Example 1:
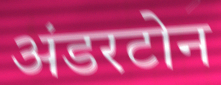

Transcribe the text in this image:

अंडरटोन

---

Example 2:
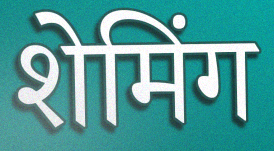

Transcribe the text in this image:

शेमिंग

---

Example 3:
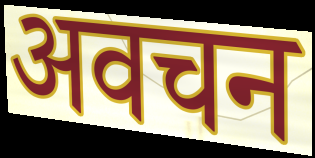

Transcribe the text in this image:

अवचन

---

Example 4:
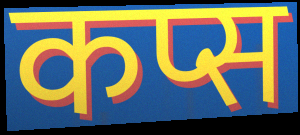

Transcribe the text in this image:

कप्स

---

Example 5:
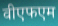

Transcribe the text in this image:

वीएफएम